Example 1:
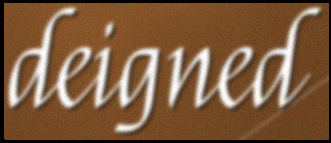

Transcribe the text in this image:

deigned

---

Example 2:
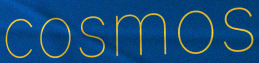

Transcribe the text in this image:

cosmos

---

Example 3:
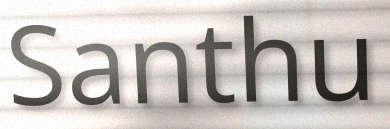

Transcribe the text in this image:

Santhu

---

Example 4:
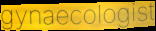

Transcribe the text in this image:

gynaecologist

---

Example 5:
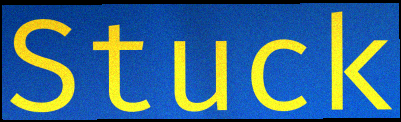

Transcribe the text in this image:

Stuck